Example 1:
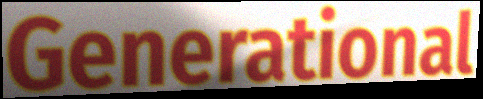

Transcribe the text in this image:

Generational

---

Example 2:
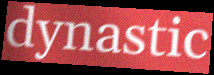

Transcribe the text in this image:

dynastic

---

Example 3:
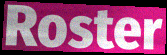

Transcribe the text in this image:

Roster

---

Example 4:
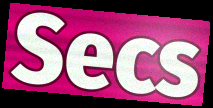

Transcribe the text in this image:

Secs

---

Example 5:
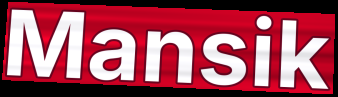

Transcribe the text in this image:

Mansik